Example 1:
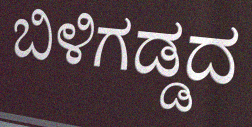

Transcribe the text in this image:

ಬಿಳಿಗಡ್ಡದ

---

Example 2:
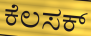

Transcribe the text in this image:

ಕೆಲಸಕ್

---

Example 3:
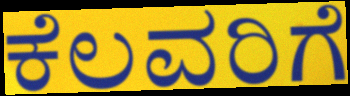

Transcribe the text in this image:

ಕೆಲವರಿಗೆ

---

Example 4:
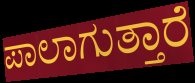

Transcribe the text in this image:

ಪಾಲಾಗುತ್ತಾರೆ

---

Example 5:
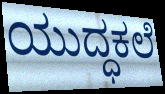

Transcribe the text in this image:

ಯುದ್ಧಕಲೆ